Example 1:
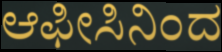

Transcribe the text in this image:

ಆಫೀಸಿನಿಂದ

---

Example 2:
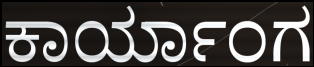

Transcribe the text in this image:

ಕಾರ್ಯಾಂಗ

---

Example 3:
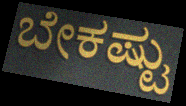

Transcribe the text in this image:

ಬೇಕಷ್ಟು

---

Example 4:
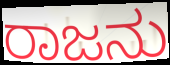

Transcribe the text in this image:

ರಾಜನು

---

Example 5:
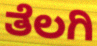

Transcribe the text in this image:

ತೆಲಗಿ